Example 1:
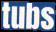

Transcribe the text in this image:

tubs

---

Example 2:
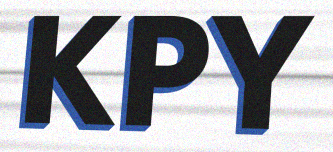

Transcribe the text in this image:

KPY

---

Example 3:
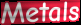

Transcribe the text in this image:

Metals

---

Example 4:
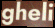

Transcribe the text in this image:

gheli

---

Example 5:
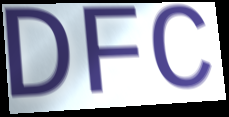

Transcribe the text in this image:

DFC